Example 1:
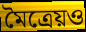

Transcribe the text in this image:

মৈত্রেয়ও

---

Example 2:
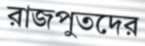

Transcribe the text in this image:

রাজপুতদের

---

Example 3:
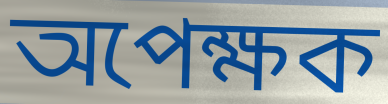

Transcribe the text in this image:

অপেক্ষক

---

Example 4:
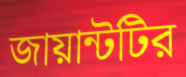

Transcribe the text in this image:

জায়ান্টটির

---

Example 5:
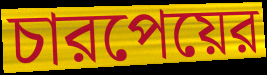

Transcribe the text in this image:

চারপেয়ের